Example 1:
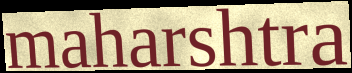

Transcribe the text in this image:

maharshtra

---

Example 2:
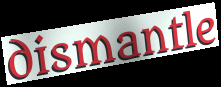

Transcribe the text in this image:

dismantle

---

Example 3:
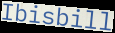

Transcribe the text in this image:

Ibisbill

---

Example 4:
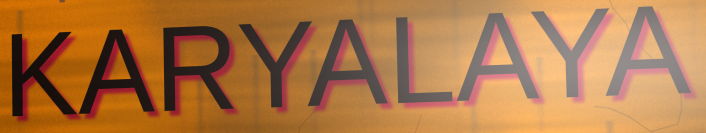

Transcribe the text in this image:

KARYALAYA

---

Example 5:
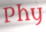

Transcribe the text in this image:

Phy